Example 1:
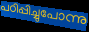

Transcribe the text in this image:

പഠിപ്പിച്ചുപോന്നു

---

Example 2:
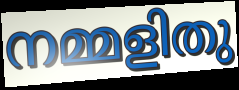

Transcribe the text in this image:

നമ്മളിതു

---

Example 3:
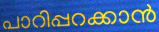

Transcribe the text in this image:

പാറിപ്പറക്കാൻ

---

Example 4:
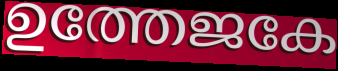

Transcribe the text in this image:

ഉത്തേജകേ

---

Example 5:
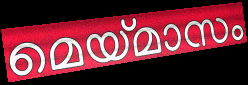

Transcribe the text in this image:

മെയ്മാസം